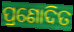
ପ୍ରଣୋଦିତ